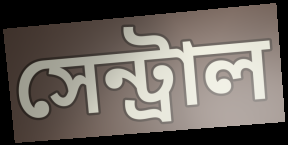
সেন্ট্রাল